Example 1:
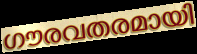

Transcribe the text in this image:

ഗൗരവതരമായി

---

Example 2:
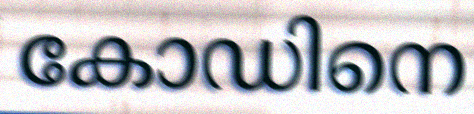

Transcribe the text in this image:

കോഡിനെ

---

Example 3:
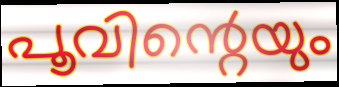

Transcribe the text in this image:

പൂവിന്റെയും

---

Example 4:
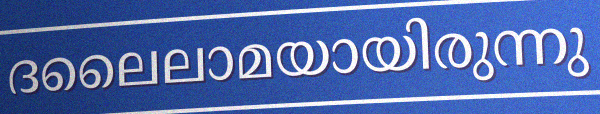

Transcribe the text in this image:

ദലൈലാമയായിരുന്നു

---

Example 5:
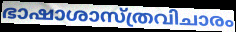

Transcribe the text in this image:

ഭാഷാശാസ്ത്രവിചാരം